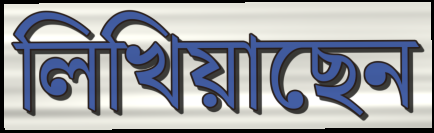
লিখিয়াছেন